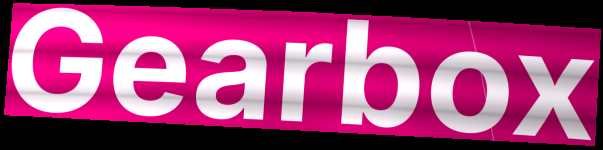
Gearbox